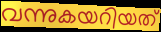
വന്നുകയറിയത്